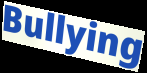
Bullying